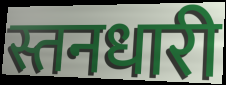
स्तनधारी